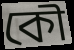
কৌ